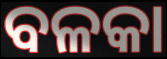
ବଳକା